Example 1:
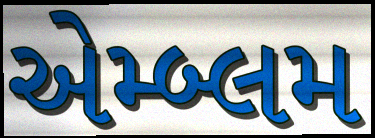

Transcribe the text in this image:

એમ્બ્લમ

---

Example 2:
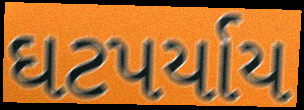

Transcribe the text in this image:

ઘટપર્યાય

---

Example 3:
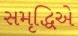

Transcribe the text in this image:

સમૃદ્ધિએ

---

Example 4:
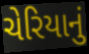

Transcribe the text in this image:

ચેરિયાનું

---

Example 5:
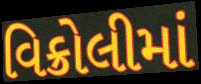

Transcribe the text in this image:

વિક્રોલીમાં